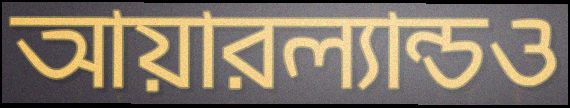
আয়ারল্যান্ডও